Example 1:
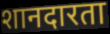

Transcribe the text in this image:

शानदारता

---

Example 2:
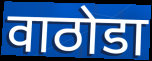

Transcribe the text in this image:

वाठोडा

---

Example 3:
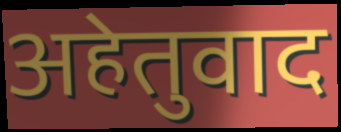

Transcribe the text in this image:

अहेतुवाद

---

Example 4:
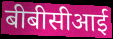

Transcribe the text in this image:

बीबीसीआई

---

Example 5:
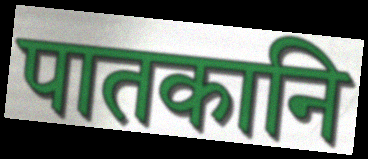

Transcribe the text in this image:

पातकानि